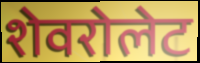
शेवरोलेट